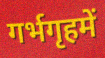
गर्भगृहमें